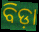
ବିଡ଼ା